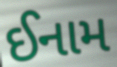
ઈનામ